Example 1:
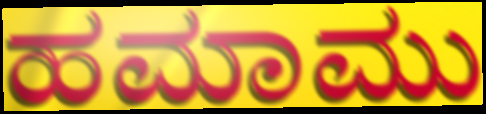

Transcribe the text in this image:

ಹಮಾಮು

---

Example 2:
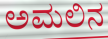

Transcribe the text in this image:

ಅಮಲಿನ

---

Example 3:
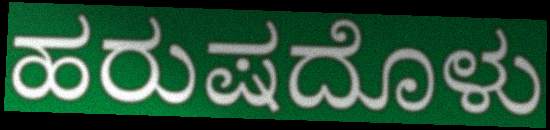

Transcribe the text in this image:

ಹರುಷದೊಳು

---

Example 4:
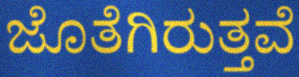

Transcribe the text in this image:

ಜೊತೆಗಿರುತ್ತವೆ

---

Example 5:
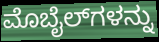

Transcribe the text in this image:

ಮೊಬೈಲ್‌ಗಳನ್ನು